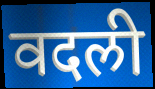
वदली